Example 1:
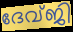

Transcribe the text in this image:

ദേവ്ജി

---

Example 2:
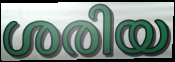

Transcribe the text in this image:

ശരിയ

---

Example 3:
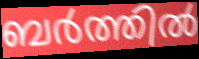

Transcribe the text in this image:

ബർത്തിൽ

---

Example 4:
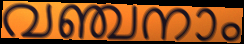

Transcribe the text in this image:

വഞ്ചനാം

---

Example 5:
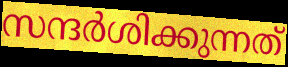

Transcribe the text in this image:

സന്ദർശിക്കുന്നത്